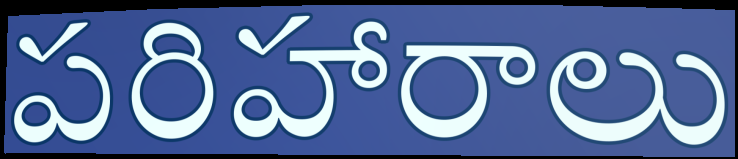
పరిహారాలు